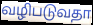
வழிபடுவதா